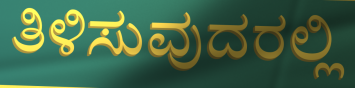
ತಿಳಿಸುವುದರಲ್ಲಿ